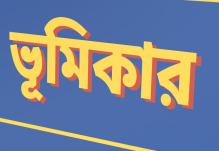
ভূমিকার